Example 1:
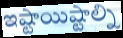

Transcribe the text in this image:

ఇష్టాయిష్టాల్ని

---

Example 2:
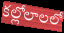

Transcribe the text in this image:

కల్లోలాలలో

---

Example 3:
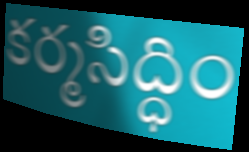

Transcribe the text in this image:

కర్మసిద్ధిం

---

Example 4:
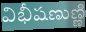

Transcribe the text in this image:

విభీషణుణ్ణి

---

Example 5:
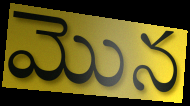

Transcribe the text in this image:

మొన